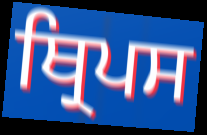
ਥ੍ਰਿਪਸ